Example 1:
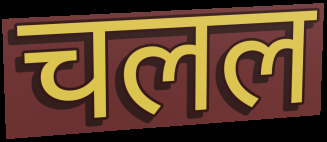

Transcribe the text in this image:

चलल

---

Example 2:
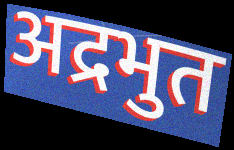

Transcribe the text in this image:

अद्रभुत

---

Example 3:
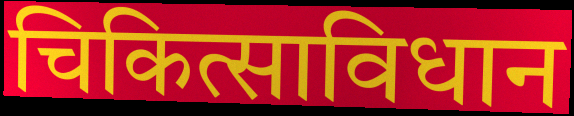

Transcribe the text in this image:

चिकित्साविधान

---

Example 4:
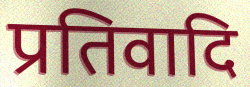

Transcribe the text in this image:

प्रतिवादि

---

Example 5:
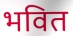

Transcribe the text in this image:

भवित